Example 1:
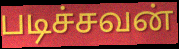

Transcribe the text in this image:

படிச்சவன்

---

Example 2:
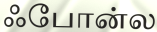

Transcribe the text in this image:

ஃபோன்ல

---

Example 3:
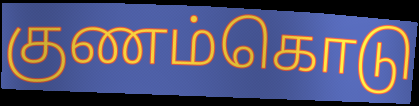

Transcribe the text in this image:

குணம்கொடு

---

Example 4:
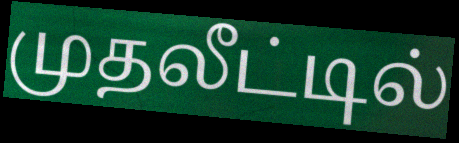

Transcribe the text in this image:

முதலீட்டில்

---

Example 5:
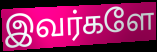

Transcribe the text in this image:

இவர்களே